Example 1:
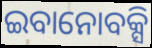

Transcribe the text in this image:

ଇବାନୋବକ୍ସି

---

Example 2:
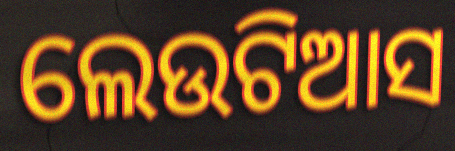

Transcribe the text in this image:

ଲେଉଟିଆସ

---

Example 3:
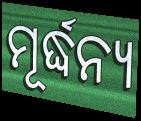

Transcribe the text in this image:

ମୂର୍ଦ୍ଧନ୍ୟ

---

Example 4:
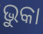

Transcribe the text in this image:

ଭୁକା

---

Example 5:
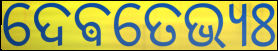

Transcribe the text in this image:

ଦେଵତେଭ୍ୟଃ